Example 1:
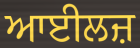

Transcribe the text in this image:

ਆਈਲਜ਼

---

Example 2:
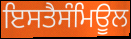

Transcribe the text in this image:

ਇਸਤੈਸੰਮਿਊਲ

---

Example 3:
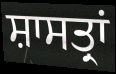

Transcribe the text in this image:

ਸ਼ਾਸਤ੍ਰਾਂ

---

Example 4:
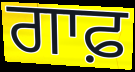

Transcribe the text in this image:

ਗਾਫ਼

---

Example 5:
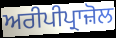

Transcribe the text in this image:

ਅਰੀਪੀਪ੍ਰਾਜ਼ੋਲ